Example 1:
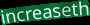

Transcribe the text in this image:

increaseth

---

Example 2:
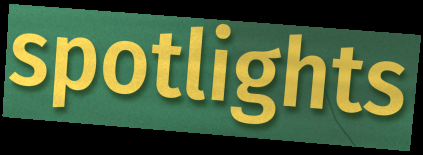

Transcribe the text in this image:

spotlights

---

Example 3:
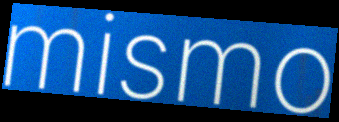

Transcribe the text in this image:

mismo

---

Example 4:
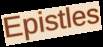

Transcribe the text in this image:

Epistles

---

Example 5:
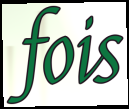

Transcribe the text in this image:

fois